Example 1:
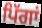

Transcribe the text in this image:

ਪਿੱਗਾਂ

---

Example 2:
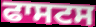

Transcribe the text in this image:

ਫਾਸਟਸ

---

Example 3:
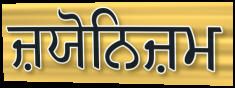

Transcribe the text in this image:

ਜ਼ਯੋਨਿਜ਼ਮ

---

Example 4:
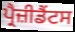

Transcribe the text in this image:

ਪ੍ਰੈਜ਼ੀਡੈਂਟਸ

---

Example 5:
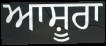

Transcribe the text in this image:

ਆਸ਼ੂਰਾ